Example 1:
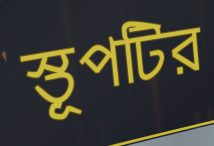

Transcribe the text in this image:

স্তূপটির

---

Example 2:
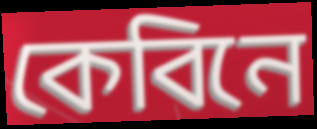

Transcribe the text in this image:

কেবিনে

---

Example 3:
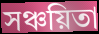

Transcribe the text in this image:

সঞ্চয়িতা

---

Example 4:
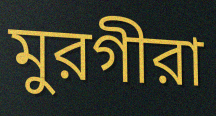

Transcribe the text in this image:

মুরগীরা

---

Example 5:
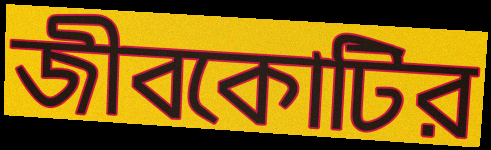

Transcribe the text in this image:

জীবকোটির